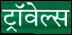
ट्रॉवेल्स